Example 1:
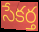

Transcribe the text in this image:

సేకర్త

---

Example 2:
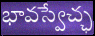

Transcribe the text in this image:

భావస్వేచ్ఛ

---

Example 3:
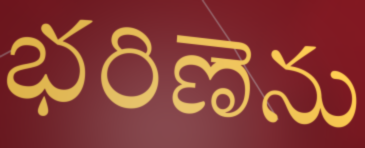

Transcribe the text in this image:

భరిణెను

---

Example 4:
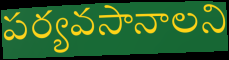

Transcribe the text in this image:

పర్యవసానాలని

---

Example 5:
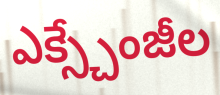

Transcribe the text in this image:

ఎక్స్చేంజీల